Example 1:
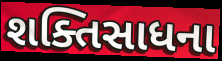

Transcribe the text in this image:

શક્તિસાધના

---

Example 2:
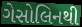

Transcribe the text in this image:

ગેસોલિનથી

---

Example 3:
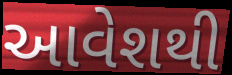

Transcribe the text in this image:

આવેશથી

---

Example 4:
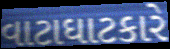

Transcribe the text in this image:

વાટાઘાટકારે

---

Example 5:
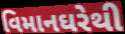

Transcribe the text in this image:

વિમાનઘરેથી